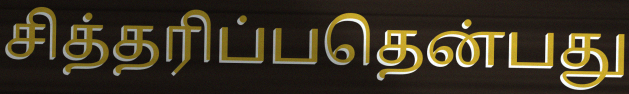
சித்தரிப்பதென்பது